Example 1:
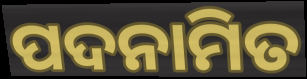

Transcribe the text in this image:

ପଦନାମିତ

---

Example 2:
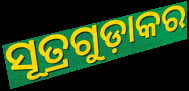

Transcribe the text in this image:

ସୂତ୍ରଗୁଡ଼ାକର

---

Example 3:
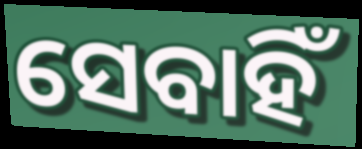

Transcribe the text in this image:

ସେବାହିଁ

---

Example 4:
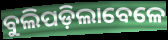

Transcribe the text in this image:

ବୁଲିପଡ଼ିଲାବେଳେ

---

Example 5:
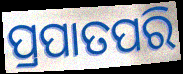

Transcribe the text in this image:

ପ୍ରପାତପରି